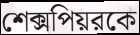
শেক্সপিয়রকে